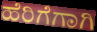
ಹೆರಿಗೆಗಾಗಿ